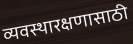
व्यवस्थारक्षणासाठी